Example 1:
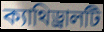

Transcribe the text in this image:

ক্যাথিড্রালটি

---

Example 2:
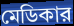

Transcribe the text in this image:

মেডিকার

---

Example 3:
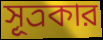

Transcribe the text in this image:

সূত্রকার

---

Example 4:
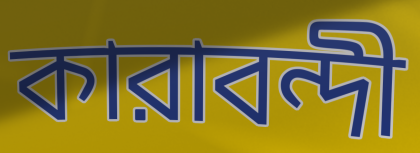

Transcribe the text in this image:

কারাবন্দী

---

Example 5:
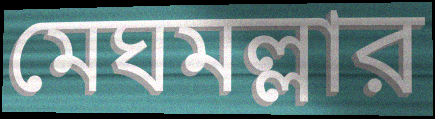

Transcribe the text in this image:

মেঘমল্লার